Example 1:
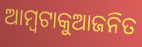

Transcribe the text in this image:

ଆମ୍ବଟାକୁଆଜନିତ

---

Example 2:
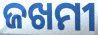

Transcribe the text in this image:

ଜଖମୀ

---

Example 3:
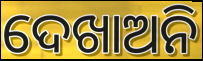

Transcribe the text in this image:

ଦେଖାଅନି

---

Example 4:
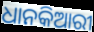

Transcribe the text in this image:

ଧାନକିଆରୀ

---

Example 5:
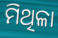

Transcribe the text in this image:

ମିଥିଳା